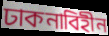
ঢাকনাবিহীন